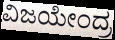
ವಿಜಯೇಂದ್ರ